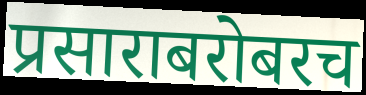
प्रसाराबरोबरच